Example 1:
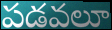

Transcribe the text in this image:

పడవలూ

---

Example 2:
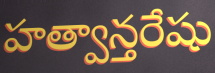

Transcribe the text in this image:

హత్వాన్తరేషు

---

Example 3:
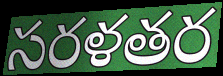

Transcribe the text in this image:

సరళతర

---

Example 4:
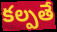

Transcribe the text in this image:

కల్పతే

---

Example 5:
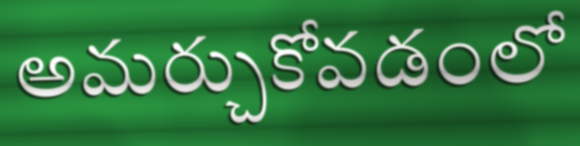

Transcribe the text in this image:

అమర్చుకోవడంలో